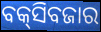
ବକ୍‍ସିବଜାର